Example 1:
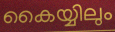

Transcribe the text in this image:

കൈയ്യിലും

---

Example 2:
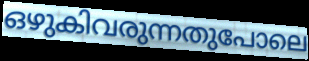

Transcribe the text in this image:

ഒഴുകിവരുന്നതുപോലെ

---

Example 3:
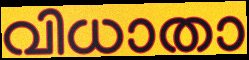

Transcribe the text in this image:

വിധാതാ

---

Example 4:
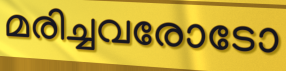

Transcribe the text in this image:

മരിച്ചവരോടോ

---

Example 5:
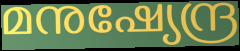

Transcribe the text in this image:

മനുഷ്യേന്ദ്ര